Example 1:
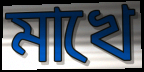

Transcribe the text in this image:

মাখে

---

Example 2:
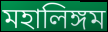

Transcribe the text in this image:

মহালিঙ্গম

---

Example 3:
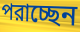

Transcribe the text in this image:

পরাচ্ছেন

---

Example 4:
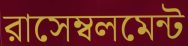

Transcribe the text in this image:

রাসেম্বলমেন্ট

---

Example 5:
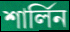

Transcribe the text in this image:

শার্লিন